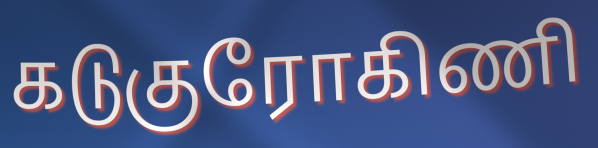
கடுகுரோகிணி